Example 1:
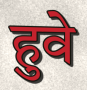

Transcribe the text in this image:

हुवे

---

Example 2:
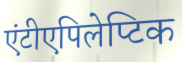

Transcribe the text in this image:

एंटीएपिलेप्टिक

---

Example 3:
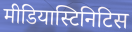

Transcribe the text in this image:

मीडियास्टिनिटिस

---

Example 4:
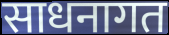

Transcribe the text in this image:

साधनागत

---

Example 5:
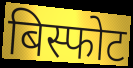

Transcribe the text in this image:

बिस्फोट